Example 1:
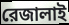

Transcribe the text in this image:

রেজালাই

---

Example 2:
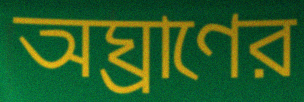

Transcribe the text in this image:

অঘ্রাণের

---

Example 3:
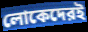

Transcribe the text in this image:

লোকেদেরই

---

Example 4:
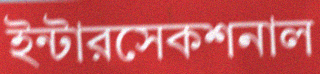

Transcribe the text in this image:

ইন্টারসেকশনাল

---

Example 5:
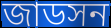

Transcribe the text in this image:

জাডসন